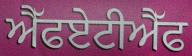
ਐੱਫਏਟੀਐੱਫ